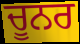
ਚੂਨਰ